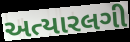
અત્યારલગી